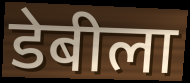
डेबीला